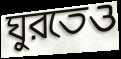
ঘুরতেও